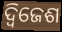
ଦ୍ୱିଜେଶ